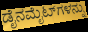
ಡೈನಮೈಟ್‌ಗಳನ್ನು